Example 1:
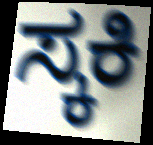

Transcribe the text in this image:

ಸ್ಕಕಿ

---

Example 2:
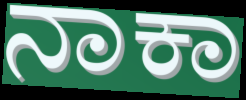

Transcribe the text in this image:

ನಾಕಾ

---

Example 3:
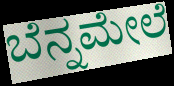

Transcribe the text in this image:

ಬೆನ್ನಮೇಲೆ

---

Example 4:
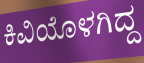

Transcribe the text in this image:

ಕಿವಿಯೊಳಗಿದ್ದ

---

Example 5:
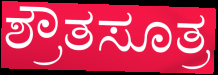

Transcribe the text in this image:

ಶ್ರೌತಸೂತ್ರ